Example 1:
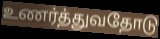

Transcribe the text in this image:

உணர்த்துவதோடு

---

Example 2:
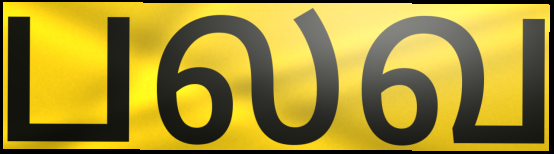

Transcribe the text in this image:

பலவ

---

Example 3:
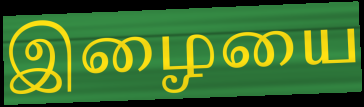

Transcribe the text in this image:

இழையை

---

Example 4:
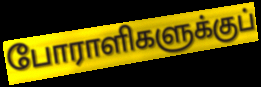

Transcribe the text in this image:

போராளிகளுக்குப்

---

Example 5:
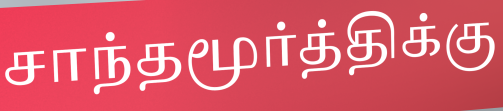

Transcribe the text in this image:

சாந்தமூர்த்திக்கு